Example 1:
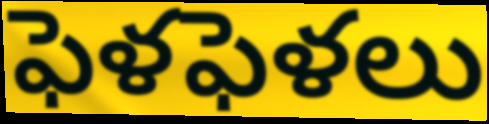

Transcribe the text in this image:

ఫెళఫెళలు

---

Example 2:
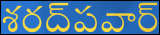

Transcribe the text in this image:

శరద్‌పవార్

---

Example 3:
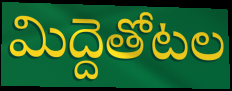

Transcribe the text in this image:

మిద్దెతోటల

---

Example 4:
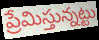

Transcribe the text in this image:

ప్రేమిస్తున్నట్టు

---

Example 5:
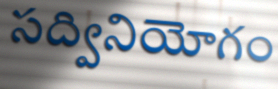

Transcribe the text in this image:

సద్వినియోగం